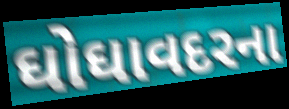
ઘોઘાવદરના